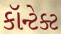
કૉન્ટેક્ટ